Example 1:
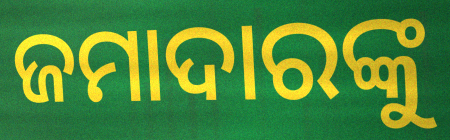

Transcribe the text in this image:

ଜମାଦାରଙ୍କୁ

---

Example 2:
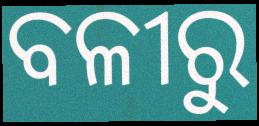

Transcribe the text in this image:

ବଳୀରୁ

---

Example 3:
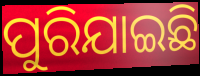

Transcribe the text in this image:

ପୁରିଯାଇଛି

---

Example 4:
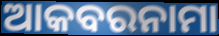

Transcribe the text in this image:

ଆକବରନାମା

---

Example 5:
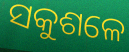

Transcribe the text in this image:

ସକୁଶଳେ